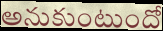
అనుకుంటుందో